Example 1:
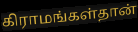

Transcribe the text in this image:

கிராமங்கள்தான்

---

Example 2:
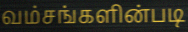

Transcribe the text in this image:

வம்சங்களின்படி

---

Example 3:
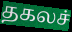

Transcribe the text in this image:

தகலச்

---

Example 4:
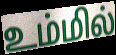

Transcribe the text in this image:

உம்மில்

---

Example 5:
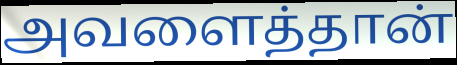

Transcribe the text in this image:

அவளைத்தான்